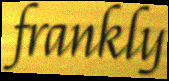
frankly